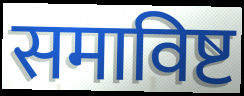
समाविष्ट